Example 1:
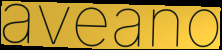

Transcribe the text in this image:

aveano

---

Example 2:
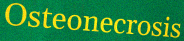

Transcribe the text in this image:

Osteonecrosis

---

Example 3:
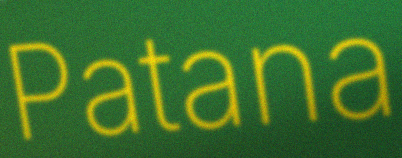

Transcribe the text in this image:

Patana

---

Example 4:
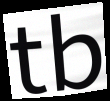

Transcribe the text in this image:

tb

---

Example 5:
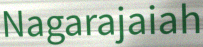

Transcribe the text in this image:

Nagarajaiah